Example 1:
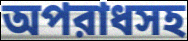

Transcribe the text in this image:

অপরাধসহ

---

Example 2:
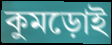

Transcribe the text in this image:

কুমড়োই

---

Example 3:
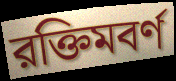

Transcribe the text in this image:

রক্তিমবর্ণ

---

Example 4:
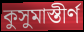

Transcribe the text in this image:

কুসুমাস্তীর্ণ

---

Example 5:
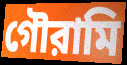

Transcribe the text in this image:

গৌরামি